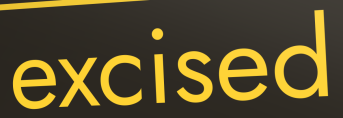
excised